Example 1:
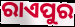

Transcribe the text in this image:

ରାଏପୁର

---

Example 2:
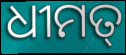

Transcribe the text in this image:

ଧୀମତ୍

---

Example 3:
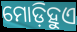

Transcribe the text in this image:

ମୋଡ଼ିହୁଏ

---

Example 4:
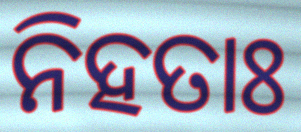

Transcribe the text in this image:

ନିହତାଃ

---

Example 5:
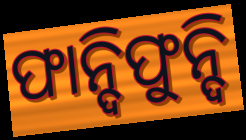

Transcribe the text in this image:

ଫାନ୍ଦିଫୁନ୍ଦି